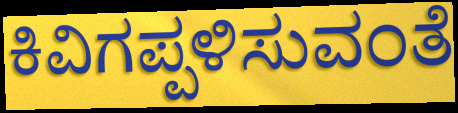
ಕಿವಿಗಪ್ಪಳಿಸುವಂತೆ